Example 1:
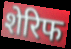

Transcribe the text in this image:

शेरिफ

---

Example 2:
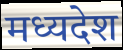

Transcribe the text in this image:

मध्यदेश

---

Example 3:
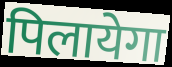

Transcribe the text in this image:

पिलायेगा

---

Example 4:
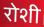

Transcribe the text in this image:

रोशी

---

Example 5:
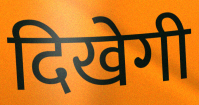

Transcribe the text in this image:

दिखेगी